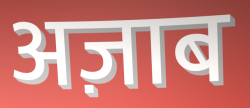
अज़ाब